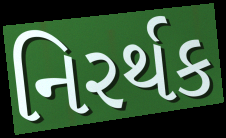
નિરર્થક